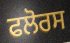
ਫਲੋਰਸ